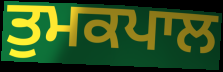
ਤੁਮਕਪਾਲ